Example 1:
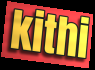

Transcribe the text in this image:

kithi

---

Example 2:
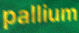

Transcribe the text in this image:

pallium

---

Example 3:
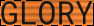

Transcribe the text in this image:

GLORY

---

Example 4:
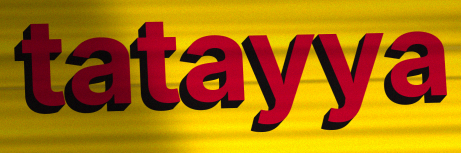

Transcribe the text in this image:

tatayya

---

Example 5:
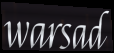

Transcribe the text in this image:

warsad